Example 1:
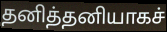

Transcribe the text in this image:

தனித்தனியாகச்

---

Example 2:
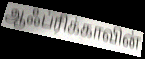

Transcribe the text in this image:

ஆஃப்ரிக்காவின்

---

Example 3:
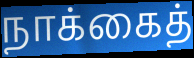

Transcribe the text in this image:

நாக்கைத்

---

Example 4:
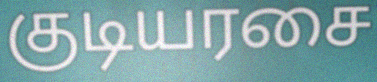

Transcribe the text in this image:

குடியரசை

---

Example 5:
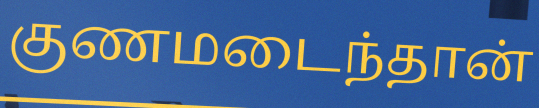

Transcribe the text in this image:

குணமடைந்தான்